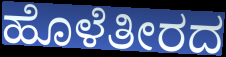
ಹೊಳೆತೀರದ